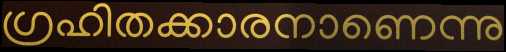
ഗ്രഹിതക്കാരനാണെന്നു